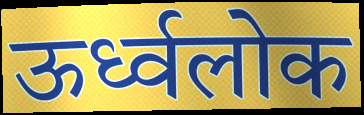
ऊर्ध्वलोक